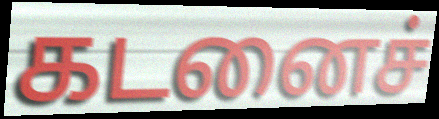
கடனைச்